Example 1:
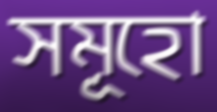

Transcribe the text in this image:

সমূহো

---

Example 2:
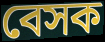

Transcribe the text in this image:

বেসক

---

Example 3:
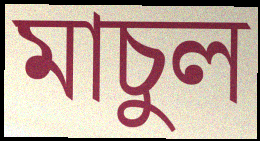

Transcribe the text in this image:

মাচুল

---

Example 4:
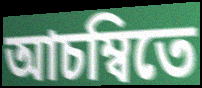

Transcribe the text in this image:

আচম্বিতে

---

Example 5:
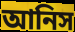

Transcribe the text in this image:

আনিস